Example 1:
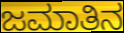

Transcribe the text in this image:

ಜಮಾತಿನ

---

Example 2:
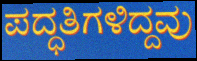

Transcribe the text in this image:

ಪದ್ಧತಿಗಳಿದ್ದವು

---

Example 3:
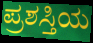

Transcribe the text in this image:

ಪ್ರಶಸ್ತಿಯ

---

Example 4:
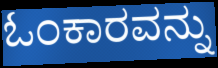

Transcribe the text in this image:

ಓಂಕಾರವನ್ನು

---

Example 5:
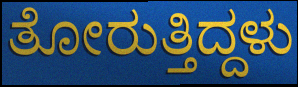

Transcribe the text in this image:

ತೋರುತ್ತಿದ್ದಳು